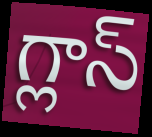
గ్లాస్